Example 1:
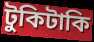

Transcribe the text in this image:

টুকিটাকি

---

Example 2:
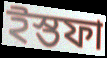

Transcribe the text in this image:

ইস্তফা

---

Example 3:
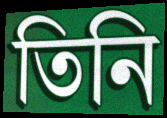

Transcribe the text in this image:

তিনি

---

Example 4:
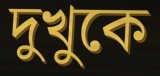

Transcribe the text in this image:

দুখুকে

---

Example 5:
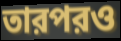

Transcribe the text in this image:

তারপরও